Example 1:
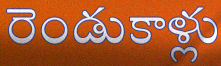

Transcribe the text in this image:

రెండుకాళ్లు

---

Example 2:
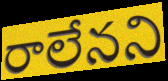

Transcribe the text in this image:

రాలేనని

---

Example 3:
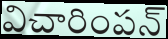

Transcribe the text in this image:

విచారింపన్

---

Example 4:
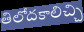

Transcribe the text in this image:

తిలోదకాలిచ్చి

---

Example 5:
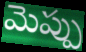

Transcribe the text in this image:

మెప్పు